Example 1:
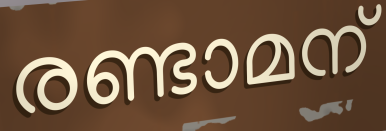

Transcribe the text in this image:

രണ്ടാമന്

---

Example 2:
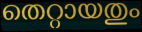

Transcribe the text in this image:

തെറ്റായതും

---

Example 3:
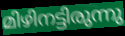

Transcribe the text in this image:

മിഴിനട്ടിരുന്നു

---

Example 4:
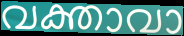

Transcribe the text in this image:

വക്താവാ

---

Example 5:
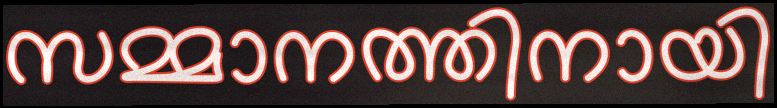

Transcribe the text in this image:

സമ്മാനത്തിനായി